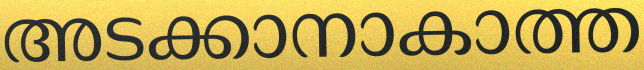
അടക്കാനാകാത്ത